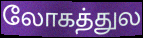
லோகத்துல